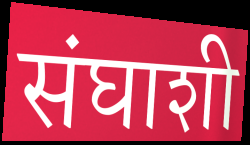
संघाशी